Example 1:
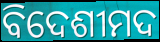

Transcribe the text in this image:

ବିଦେଶୀମଦ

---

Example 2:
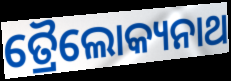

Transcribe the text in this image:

ତ୍ରୈଲୋକ୍ୟନାଥ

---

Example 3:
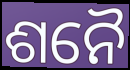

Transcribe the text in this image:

ଶନୈ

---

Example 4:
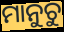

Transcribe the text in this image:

ମାନୁଚୁ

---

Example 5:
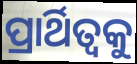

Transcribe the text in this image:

ପ୍ରାର୍ଥିତ୍ୱକୁ